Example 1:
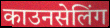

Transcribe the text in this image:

काउनसेलिंग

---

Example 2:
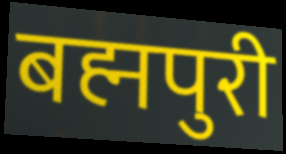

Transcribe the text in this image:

बह्मपुरी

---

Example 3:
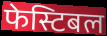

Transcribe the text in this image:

फेस्टिबल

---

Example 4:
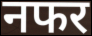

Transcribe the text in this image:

नफर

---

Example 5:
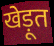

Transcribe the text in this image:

खेड़ूत